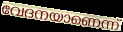
വേദനയാണെന്ന്